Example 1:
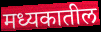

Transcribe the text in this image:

मध्यकातील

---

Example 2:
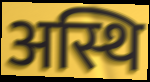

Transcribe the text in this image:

अस्थि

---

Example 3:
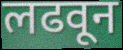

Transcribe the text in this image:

लढवून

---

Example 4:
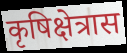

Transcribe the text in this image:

कृषिक्षेत्रास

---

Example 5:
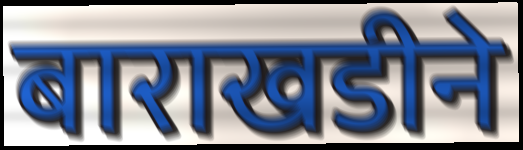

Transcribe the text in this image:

बाराखडीने